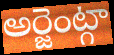
అర్జెంట్గా